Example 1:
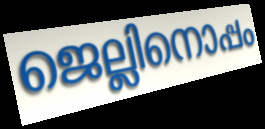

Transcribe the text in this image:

ജെല്ലിനൊപ്പം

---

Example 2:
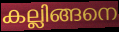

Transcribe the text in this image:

കല്ലിങ്ങനെ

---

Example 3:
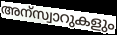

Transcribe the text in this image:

അന്സ്വാറുകളും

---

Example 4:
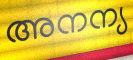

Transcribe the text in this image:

അനന്യ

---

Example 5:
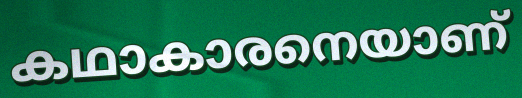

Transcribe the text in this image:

കഥാകാരനെയാണ്